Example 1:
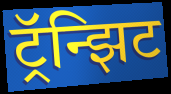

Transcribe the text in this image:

ट्रॅन्झिट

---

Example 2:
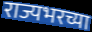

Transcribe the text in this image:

राज्यभरच्या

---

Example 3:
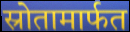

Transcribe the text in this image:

स्रोतामार्फत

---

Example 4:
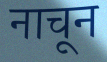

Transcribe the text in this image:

नाचून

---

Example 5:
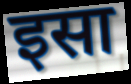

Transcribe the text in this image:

इसा